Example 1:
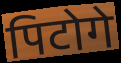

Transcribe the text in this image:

पिटोगे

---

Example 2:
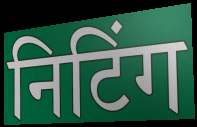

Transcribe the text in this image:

निटिंग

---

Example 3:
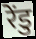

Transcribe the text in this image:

रेंडु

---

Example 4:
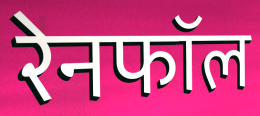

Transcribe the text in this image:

रेनफॉल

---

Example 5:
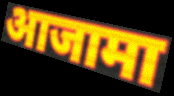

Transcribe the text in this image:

आजामा